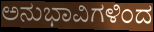
ಅನುಭಾವಿಗಳಿಂದ